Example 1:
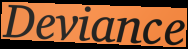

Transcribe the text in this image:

Deviance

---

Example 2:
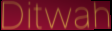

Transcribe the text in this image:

Ditwah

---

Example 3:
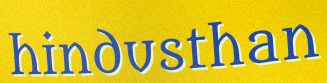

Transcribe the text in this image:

hindusthan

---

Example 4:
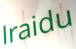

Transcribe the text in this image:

Iraidu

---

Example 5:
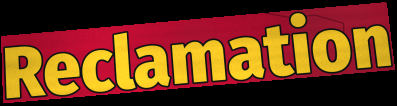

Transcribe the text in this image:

Reclamation